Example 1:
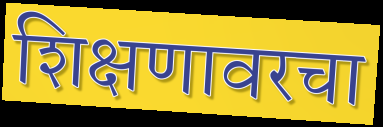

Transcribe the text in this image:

शिक्षणावरचा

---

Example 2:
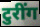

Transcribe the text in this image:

टुरींग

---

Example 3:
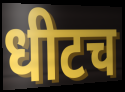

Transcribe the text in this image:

धीटच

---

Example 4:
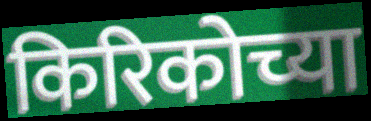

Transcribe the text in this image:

किरिकोच्या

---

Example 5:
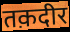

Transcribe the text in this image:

तक़दीर